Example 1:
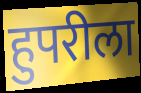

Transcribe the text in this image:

हुपरीला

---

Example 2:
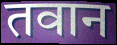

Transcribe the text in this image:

तवान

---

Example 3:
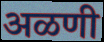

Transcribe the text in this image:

अळणी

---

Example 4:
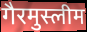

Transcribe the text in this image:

गैरमुस्लीम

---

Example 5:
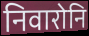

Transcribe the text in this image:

निवारोनि